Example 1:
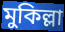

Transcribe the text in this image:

মুকিল্লা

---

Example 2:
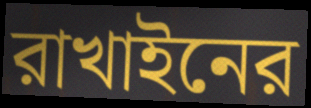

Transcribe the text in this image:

রাখাইনের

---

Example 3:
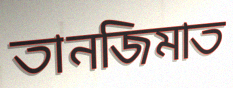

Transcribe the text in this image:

তানজিমাত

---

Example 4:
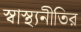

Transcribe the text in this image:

স্বাস্থ্যনীতির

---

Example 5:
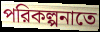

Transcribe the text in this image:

পরিকল্পনাতে